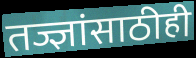
तज्ज्ञांसाठीही